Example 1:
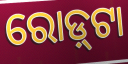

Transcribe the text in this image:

ରୋଡ଼୍‌ଟା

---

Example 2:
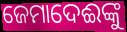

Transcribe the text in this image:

ଜେମାଦେଈଙ୍କୁ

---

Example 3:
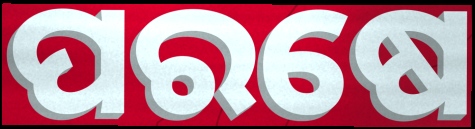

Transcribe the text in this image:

ପରଷେ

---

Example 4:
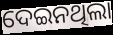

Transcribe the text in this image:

ଦେଇନଥିଲା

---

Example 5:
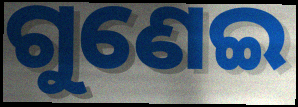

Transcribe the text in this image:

ଗୁଣେଇ